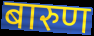
बारुण